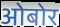
ओबोर